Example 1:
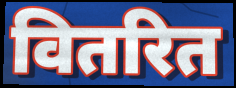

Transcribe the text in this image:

वितरित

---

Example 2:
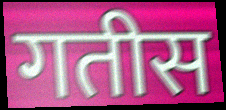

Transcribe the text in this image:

गतीस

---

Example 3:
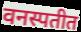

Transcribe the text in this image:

वनस्पतीत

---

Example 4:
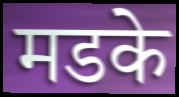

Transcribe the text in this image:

मडके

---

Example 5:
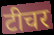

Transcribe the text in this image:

टीचर